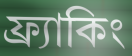
ফ্র্যাকিং